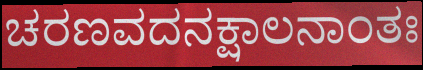
ಚರಣವದನಕ್ಷಾಲನಾಂತಃ